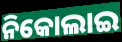
ନିକୋଲାଇ